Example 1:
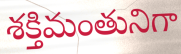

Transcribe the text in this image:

శక్తిమంతునిగా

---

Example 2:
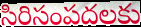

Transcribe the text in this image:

సిరిసంపదలకు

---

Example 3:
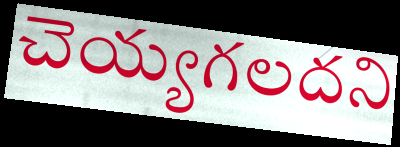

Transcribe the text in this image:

చెయ్యగలదని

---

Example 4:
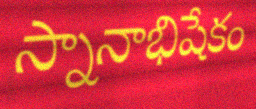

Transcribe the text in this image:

స్నానాభిషేకం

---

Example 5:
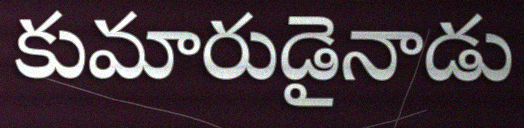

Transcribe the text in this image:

కుమారుడైనాడు